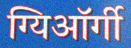
ग्यिऑर्गी